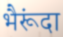
भैरूंदा